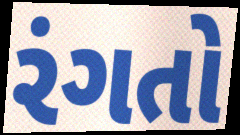
રંગતો